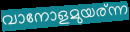
വാനോളമുയര്ന്ന